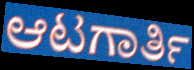
ಆಟಗಾರ್ತಿ